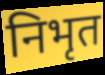
निभृत